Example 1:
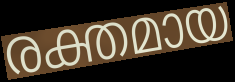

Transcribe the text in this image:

രക്തമായ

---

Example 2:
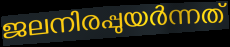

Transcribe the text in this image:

ജലനിരപ്പുയർന്നത്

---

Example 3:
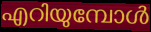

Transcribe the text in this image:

എറിയുമ്പോൾ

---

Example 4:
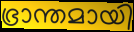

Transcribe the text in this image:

ഭ്രാന്തമായി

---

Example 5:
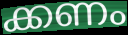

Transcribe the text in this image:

ക്കണം